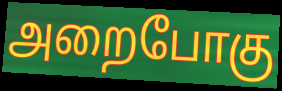
அறைபோகு